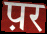
प़र